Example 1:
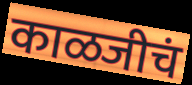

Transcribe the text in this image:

काळजीचं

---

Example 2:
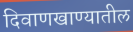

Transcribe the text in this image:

दिवाणखाण्यातील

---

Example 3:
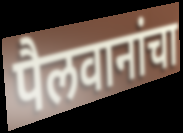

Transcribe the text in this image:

पैलवानांचा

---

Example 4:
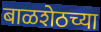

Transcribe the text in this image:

बाळशेठच्या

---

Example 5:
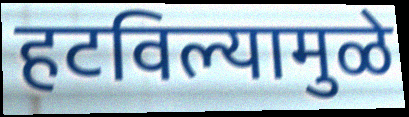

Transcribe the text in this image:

हटविल्यामुळे